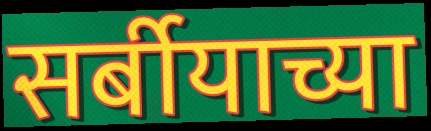
सर्बीयाच्या